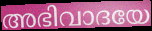
അഭിവാദയേ